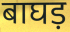
बाघड़